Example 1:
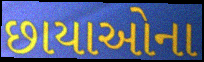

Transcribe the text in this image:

છાયાઓના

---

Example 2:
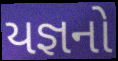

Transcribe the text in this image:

યજ્ઞનો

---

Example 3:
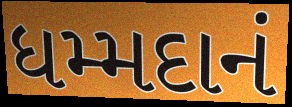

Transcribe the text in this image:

ધમ્મદાનં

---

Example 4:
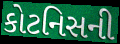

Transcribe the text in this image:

કોટનિસની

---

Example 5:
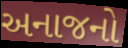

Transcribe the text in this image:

અનાજનો